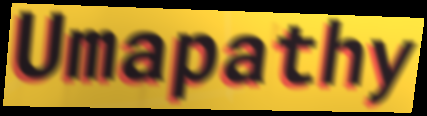
Umapathy